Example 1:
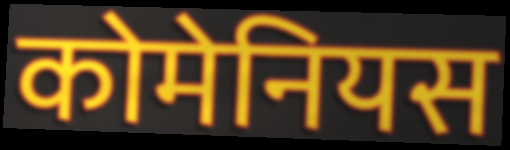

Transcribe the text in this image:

कोमेनियस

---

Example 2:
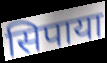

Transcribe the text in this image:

सिपाया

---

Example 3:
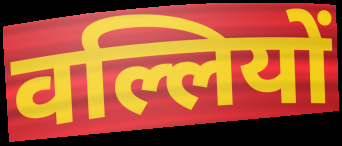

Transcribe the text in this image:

वल्लियों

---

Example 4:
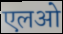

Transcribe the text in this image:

एलओ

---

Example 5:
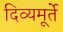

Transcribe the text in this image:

दिव्यमूर्ते